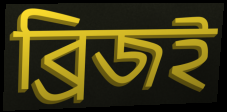
ব্রিজই